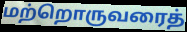
மற்றொருவரைத்